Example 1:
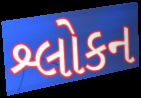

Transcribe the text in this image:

શ્લોકન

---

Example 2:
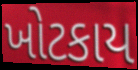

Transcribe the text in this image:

ખોટકાય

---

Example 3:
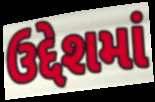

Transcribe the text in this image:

ઉદ્દેશમાં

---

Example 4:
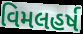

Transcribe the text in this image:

વિમલહર્ષ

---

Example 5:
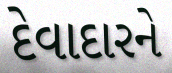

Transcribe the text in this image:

દેવાદારને